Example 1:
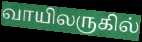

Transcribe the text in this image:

வாயிலருகில்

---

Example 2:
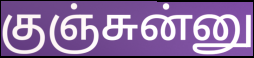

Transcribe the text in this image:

குஞ்சுன்னு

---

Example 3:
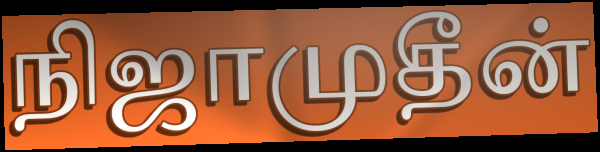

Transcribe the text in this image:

நிஜாமுதீன்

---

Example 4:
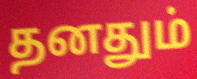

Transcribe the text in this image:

தனதும்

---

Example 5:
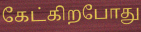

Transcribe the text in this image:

கேட்கிறபோது